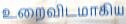
உறைவிடமாகிய